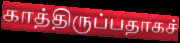
காத்திருப்பதாகச்